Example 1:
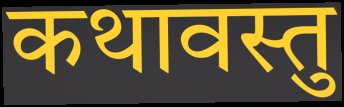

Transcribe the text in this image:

कथावस्‍तु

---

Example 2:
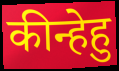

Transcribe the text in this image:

कीन्हेहु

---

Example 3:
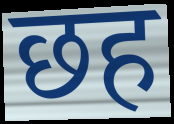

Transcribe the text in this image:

छह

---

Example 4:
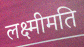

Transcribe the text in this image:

लक्ष्मीमति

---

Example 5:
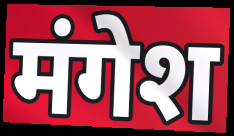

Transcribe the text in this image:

मंगेश